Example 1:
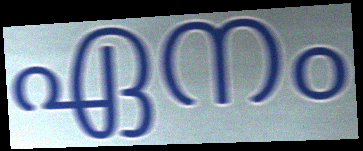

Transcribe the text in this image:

ഏനം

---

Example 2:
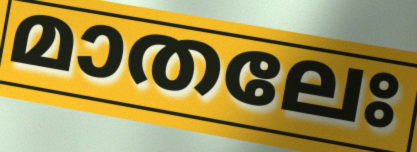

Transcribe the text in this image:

മാതലേഃ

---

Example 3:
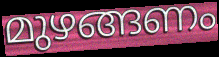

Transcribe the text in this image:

മുഴങ്ങണം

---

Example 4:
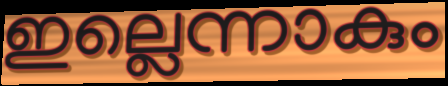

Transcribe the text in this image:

ഇല്ലെന്നാകും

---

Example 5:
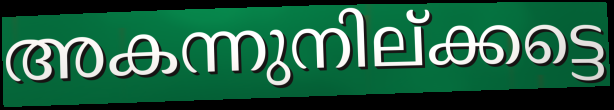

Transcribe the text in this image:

അകന്നുനില്ക്കട്ടെ